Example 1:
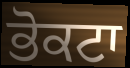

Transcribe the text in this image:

ਭੋਕਟਾ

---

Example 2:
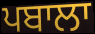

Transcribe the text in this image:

ਪਬਾਲਾ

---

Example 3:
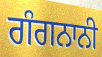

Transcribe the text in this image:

ਗੰਗਨਾਨੀ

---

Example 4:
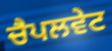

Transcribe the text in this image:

ਚੈਪਲਵੇਟ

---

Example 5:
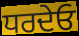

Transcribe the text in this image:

ਧਰਦੇਓ